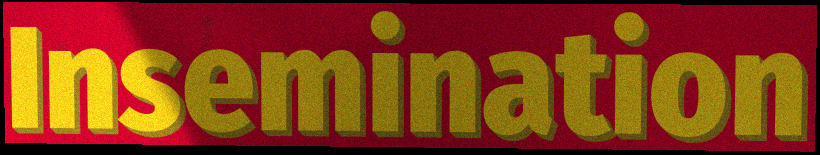
Insemination